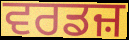
ਵਰਡਜ਼